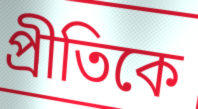
প্রীতিকে